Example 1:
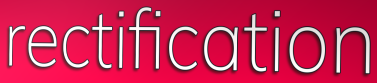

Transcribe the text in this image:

rectification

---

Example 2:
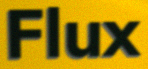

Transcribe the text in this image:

Flux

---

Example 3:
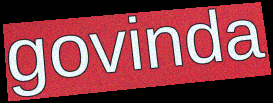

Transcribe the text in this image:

govinda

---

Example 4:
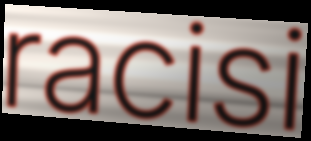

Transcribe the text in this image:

racisi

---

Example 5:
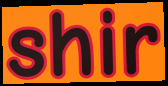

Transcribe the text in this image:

shir